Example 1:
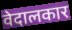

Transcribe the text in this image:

वेदालकार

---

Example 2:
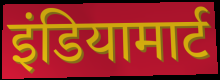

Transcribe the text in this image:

इंडियामार्ट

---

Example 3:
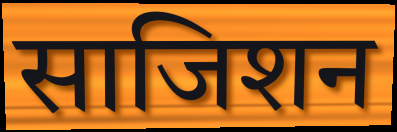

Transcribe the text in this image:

साजिशन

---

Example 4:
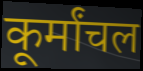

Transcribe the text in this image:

कूर्मांचल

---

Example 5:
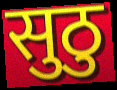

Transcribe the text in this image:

सुठु